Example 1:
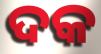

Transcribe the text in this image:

ଦକ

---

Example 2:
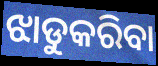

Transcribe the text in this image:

ଝାଡୁକରିବା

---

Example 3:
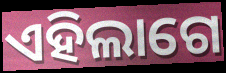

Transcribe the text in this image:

ଏହିଲାଗେ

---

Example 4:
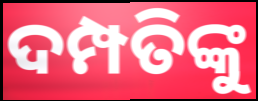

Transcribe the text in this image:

ଦମ୍ପତିଙ୍କୁ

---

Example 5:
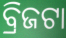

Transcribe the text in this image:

ବ୍ରିଜଟା